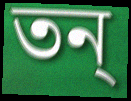
তন্